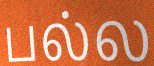
பல்ல